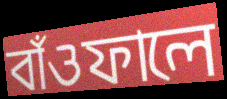
বাঁওফালে